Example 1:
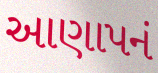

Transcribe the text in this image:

આણાપનં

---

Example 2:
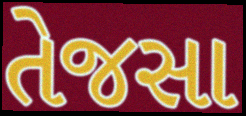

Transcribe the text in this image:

તેજસા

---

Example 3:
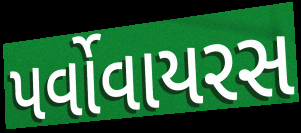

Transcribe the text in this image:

પર્વોવાયરસ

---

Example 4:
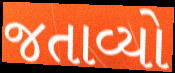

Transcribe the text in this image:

જતાવ્યો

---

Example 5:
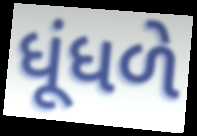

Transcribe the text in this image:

ધૂંધળે